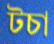
টচা